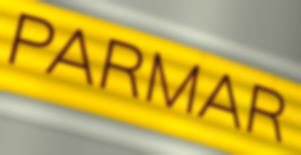
PARMAR